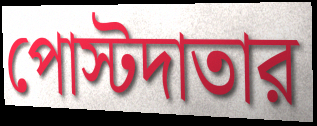
পোস্টদাতার